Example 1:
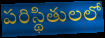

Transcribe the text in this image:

పరిస్థితులలో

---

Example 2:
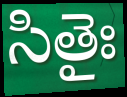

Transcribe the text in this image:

సితైః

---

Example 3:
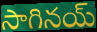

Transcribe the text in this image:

సాగినయ్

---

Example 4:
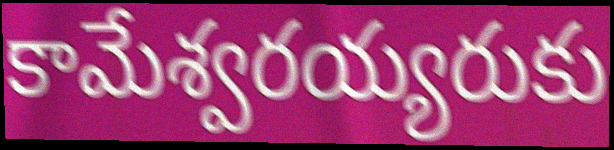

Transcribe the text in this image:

కామేశ్వరయ్యరుకు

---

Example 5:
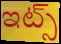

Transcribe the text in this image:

ఇట్స్